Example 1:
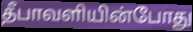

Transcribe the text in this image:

தீபாவளியின்போது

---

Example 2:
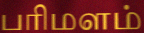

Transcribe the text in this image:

பரிமளம்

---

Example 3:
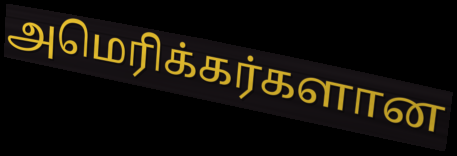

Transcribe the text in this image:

அமெரிக்கர்களான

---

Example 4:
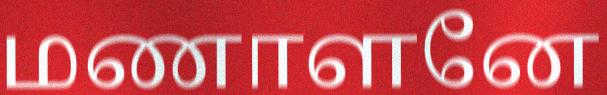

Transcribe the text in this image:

மணாளனே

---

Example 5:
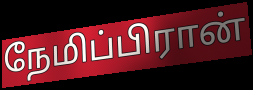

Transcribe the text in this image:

நேமிப்பிரான்